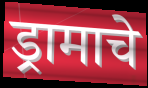
ड्रामाचे